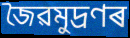
জৈৱমুদ্ৰণৰ